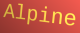
Alpine